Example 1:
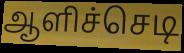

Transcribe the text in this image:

ஆளிச்செடி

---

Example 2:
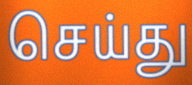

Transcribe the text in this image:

செய்து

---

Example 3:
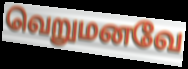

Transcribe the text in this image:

வெறுமனவே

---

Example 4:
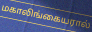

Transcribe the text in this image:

மகாலிங்கையரால்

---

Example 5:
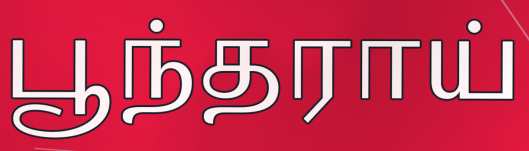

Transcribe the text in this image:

பூந்தராய்